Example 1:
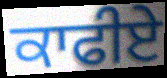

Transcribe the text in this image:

ਕਾਫੀਏ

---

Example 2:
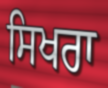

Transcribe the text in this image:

ਸਿਖਰਾ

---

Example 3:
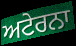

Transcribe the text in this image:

ਅਟੇਰਨਾ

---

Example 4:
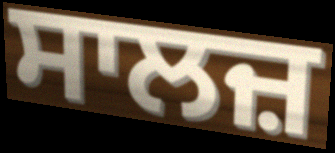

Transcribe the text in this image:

ਸਾਲਜ਼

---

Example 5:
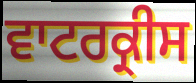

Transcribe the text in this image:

ਵਾਟਰਕ੍ਰੀਸ